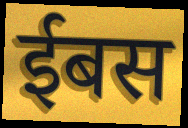
ईबस